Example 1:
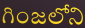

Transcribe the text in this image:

గింజలోని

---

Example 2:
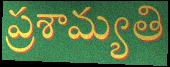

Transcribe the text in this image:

ప్రశామ్యతి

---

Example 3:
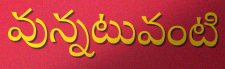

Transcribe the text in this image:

వున్నటువంటి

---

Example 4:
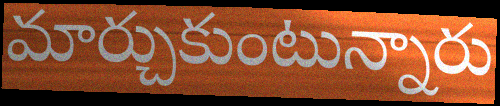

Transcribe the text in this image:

మార్చుకుంటున్నారు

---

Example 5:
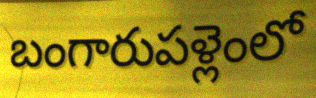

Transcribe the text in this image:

బంగారుపళ్లెంలో